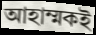
আহাম্মকই